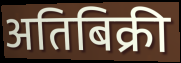
अतिबिक्री